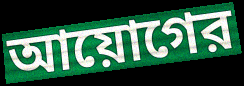
আয়োগের